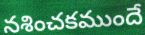
నశించకముందే